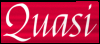
Quasi